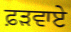
ਫ਼ੜਵਾਏ